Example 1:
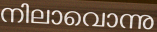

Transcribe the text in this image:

നിലാവൊന്നു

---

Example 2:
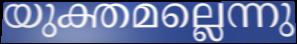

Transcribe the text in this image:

യുക്തമല്ലെന്നു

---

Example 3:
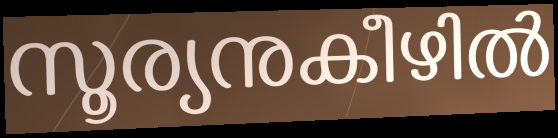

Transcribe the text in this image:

സൂര്യനുകീഴിൽ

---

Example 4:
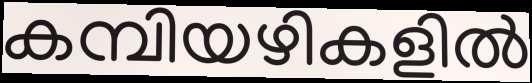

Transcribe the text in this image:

കമ്പിയഴികളിൽ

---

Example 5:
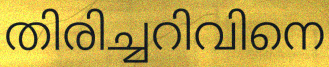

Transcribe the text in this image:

തിരിച്ചറിവിനെ